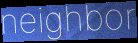
neighbor